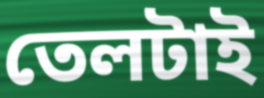
তেলটাই